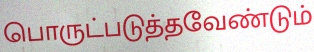
பொருட்படுத்தவேண்டும்